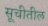
सूचीतील